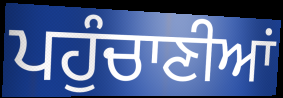
ਪਹੁੰਚਾਣੀਆਂ